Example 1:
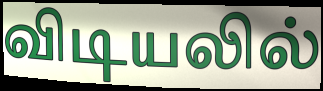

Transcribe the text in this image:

விடியலில்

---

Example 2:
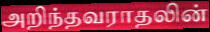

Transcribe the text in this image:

அறிந்தவராதலின்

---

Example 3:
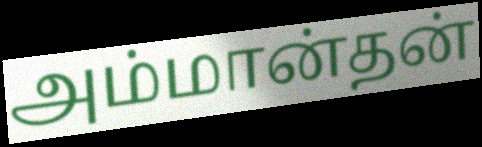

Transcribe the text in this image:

அம்மான்தன்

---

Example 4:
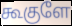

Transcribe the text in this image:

கூகுளே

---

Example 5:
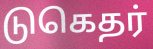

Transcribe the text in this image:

டுகெதர்